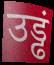
उड्ढं